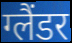
ग्लैंडर